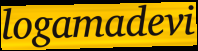
logamadevi